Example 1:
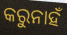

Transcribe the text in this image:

କରୁନାହଁ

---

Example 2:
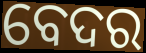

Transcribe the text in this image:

ବେଦର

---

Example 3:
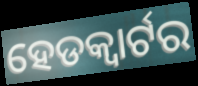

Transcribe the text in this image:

ହେଡକ୍ୱାର୍ଟର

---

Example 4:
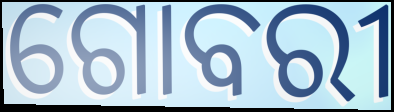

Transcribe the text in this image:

ଗୋବରୀ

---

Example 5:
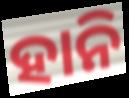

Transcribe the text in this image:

ହାନି